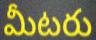
మీటరు